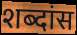
शब्दांस